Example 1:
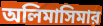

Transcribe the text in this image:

অলিমাসিমার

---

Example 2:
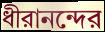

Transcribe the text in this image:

ধীরানন্দের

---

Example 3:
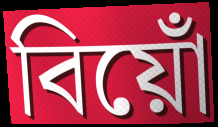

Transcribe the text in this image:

বিয়োঁ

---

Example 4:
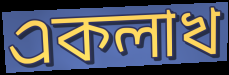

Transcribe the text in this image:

একলাখ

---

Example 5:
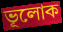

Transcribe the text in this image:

ভূলোক